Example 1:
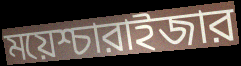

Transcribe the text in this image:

ময়েশ্চারাইজার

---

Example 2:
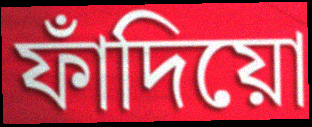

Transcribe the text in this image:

ফাঁদিয়ো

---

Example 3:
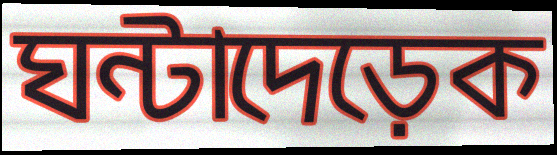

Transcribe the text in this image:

ঘন্টাদেড়েক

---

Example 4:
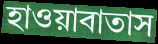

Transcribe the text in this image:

হাওয়াবাতাস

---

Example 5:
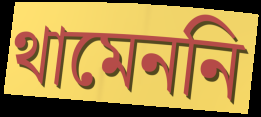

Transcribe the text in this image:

থামেননি